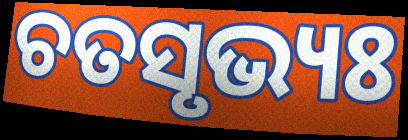
ଚତସୃଭ୍ୟଃ